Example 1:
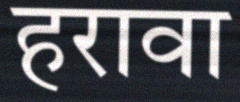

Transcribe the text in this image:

हरावा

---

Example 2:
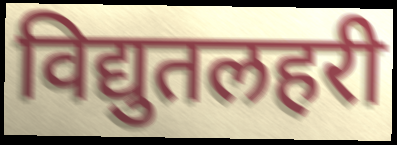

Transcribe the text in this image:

विद्युतलहरी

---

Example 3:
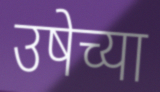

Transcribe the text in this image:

उषेच्या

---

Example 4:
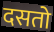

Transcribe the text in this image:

दसतो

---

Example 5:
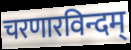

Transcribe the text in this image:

चरणारविन्दम्